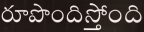
రూపొందిస్తోంది